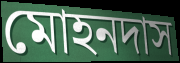
মোহনদাস